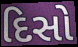
દિસો